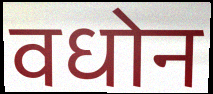
वधोन